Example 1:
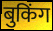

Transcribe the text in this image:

बुकिंग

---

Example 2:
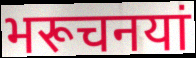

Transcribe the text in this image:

भरूचनयां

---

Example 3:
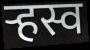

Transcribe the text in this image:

र्‍हस्व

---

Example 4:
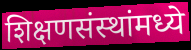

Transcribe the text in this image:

शिक्षणसंस्थांमध्ये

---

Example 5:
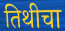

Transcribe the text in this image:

तिथीचा